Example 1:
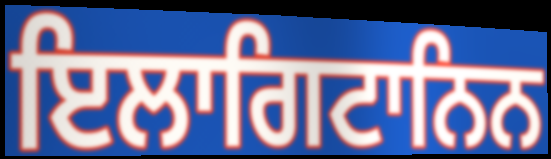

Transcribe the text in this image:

ਇਲਾਗਿਟਾਨਿਨ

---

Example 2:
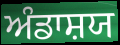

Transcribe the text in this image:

ਅੰਡਾਸ਼ਯ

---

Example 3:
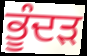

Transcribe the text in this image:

ਭੂੰਦੜ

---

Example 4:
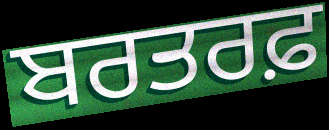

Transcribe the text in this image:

ਬਰਤਰਫ਼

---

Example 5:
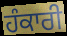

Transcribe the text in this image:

ਹੰਕਾਰੀ